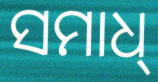
ସମାଧ୍